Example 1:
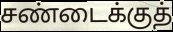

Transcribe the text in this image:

சண்டைக்குத்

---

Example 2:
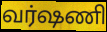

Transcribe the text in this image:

வர்ஷணி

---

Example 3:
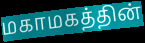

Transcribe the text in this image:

மகாமகத்தின்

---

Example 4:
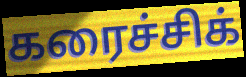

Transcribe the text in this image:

கரைச்சிக்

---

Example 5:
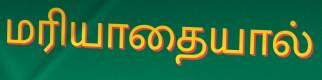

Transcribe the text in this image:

மரியாதையால்